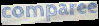
comparee